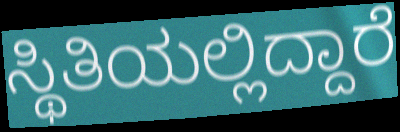
ಸ್ಥಿತಿಯಲ್ಲಿದ್ದಾರೆ